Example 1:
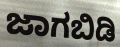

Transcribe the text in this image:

ಜಾಗಬಿಡಿ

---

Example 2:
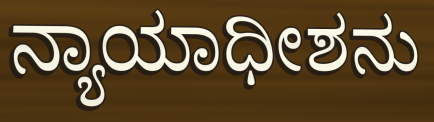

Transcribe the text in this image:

ನ್ಯಾಯಾಧೀಶನು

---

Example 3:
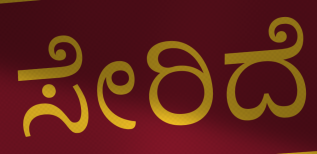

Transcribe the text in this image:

ಸೇರಿದೆ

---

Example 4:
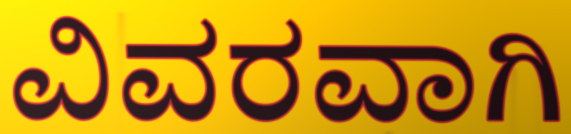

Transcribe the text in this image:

ವಿವರವಾಗಿ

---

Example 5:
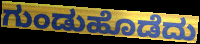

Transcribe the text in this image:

ಗುಂಡುಹೊಡೆದು